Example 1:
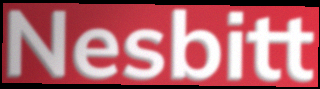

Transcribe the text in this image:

Nesbitt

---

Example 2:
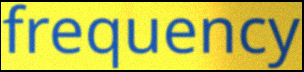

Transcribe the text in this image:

frequency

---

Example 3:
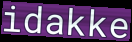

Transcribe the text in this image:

idakke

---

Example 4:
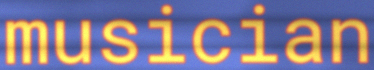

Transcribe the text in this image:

musician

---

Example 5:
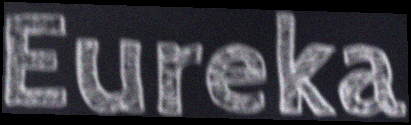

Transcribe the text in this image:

Eureka